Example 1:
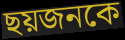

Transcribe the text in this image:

ছয়জনকে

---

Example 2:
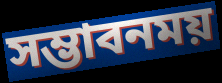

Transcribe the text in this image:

সম্ভাবনময়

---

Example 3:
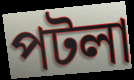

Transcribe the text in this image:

পটলা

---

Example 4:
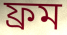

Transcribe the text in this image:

ফ্রম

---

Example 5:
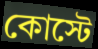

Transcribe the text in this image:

কোস্টে